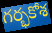
గర్భకోశ